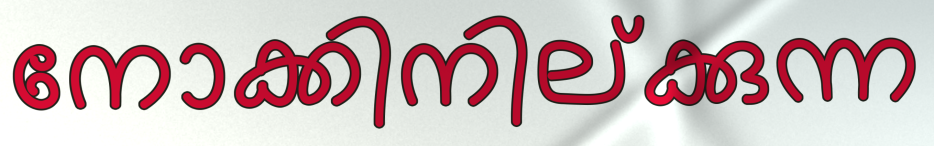
നോക്കിനില്ക്കുന്ന